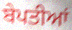
ਬੇਪਤੀਆਂ